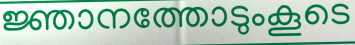
ജ്ഞാനത്തോടുംകൂടെ